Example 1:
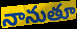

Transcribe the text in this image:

నానుతూ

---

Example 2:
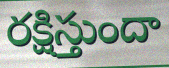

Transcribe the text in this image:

రక్షిస్తుందా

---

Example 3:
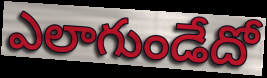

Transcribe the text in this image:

ఎలాగుండేదో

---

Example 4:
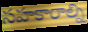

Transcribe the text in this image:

సహకారాల్ని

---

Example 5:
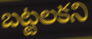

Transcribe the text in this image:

బట్టలకని